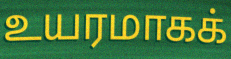
உயரமாகக்